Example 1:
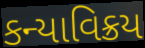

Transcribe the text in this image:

કન્યાવિક્રય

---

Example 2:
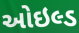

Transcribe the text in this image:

ઓઇલ્ડ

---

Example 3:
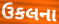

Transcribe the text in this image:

ઉકલના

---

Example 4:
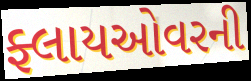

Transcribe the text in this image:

ફ્લાયઓવરની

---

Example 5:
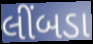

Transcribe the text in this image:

લીંબડા